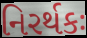
નિરર્થકઃ